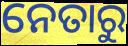
ନେତାରୁ